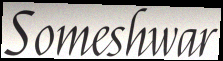
Someshwar